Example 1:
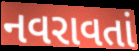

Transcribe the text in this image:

નવરાવતાં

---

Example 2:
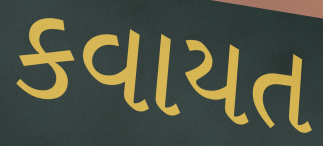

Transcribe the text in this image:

કવાયત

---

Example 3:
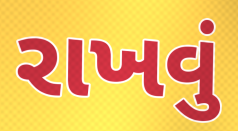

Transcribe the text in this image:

રાખવું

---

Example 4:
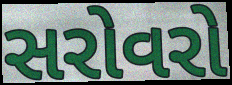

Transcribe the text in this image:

સરોવરો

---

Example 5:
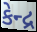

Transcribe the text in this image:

કેન્દ્ર